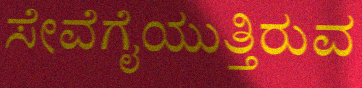
ಸೇವೆಗೈಯುತ್ತಿರುವ